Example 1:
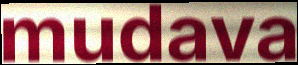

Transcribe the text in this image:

mudava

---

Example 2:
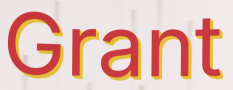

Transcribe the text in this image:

Grant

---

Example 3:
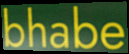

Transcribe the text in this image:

bhabe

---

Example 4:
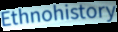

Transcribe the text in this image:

Ethnohistory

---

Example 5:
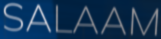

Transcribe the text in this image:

SALAAM